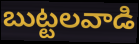
బుట్టలవాడి